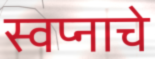
स्वप्नाचे